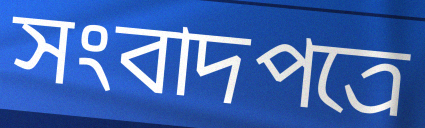
সংবাদপত্রে